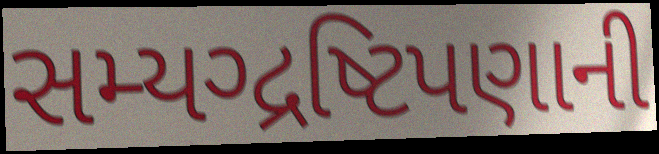
સમ્યગ્દ્રષ્ટિપણાની